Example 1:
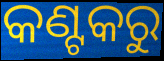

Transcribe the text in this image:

କଣ୍ଟକରୁ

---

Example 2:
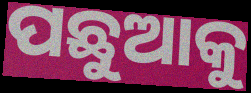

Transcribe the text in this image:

ପଛୁଆକୁ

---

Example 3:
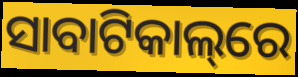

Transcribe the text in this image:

ସାବାଟିକାଲ୍‌ରେ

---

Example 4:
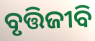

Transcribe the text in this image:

ବୃତ୍ତିଜୀବି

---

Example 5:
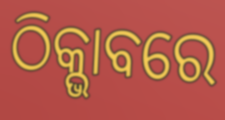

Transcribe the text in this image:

ଠିକ୍ଭାବରେ